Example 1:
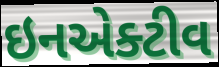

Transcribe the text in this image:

ઇનએક્ટીવ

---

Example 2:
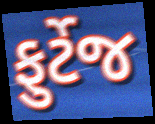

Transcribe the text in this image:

ફુર્ટેજ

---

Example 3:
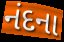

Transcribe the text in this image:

નંદના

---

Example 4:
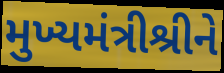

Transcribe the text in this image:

મુખ્યમંત્રીશ્રીને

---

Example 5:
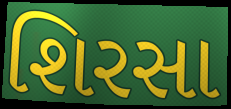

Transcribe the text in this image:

શિરસા